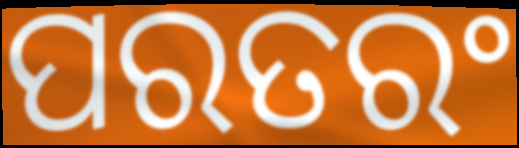
ପରତରଂ